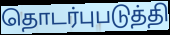
தொடர்புபடுத்தி